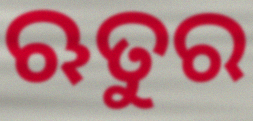
ଋତୁର